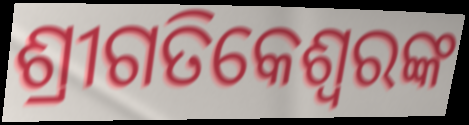
ଶ୍ରୀଗତିକେଶ୍ବରଙ୍କ